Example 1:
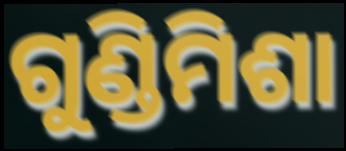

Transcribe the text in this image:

ଗୁଣ୍ଡିମିଶା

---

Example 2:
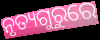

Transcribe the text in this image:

ନୃତ୍ୟଗୁରୁରେ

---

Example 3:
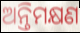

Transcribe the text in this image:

ଅନ୍ତିମକ୍ଷଣ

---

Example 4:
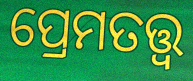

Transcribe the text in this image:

ପ୍ରେମତତ୍ତ୍ୱ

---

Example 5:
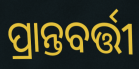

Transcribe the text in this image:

ପ୍ରାନ୍ତବର୍ତ୍ତୀ